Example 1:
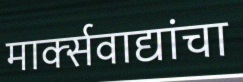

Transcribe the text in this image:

मार्क्‍सवाद्यांचा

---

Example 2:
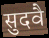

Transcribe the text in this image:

सुदवै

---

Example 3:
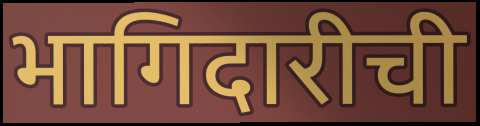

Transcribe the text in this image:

भागिदारीची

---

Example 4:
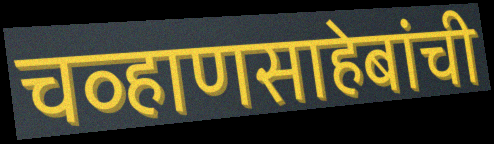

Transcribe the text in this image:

चव्हाणसाहेबांची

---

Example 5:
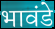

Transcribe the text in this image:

भावंडे